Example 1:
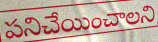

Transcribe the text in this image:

పనిచేయించాలని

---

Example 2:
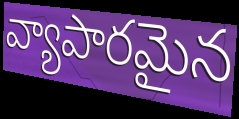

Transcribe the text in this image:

వ్యాపారమైన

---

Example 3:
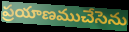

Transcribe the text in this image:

ప్రయాణముచేసెను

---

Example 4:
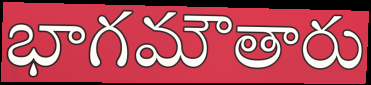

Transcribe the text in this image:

భాగమౌతారు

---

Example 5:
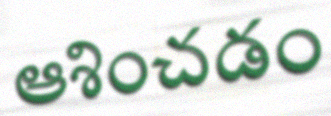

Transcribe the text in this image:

ఆశించడం